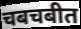
चबचबीत